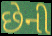
છેની